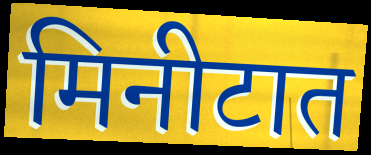
मिनीटात